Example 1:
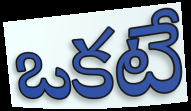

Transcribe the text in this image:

ఒకటే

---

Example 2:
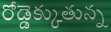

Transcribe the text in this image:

రోడ్డెక్కుతున్న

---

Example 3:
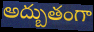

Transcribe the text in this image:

అద్బుతంగా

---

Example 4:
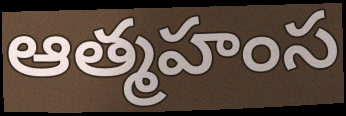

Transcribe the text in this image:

ఆత్మహంస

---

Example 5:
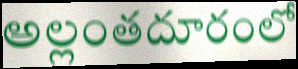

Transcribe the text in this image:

అల్లంతదూరంలో